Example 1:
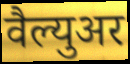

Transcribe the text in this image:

वैल्युअर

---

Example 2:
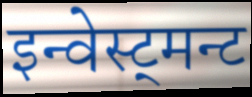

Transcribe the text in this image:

इन्वेस्ट्मन्ट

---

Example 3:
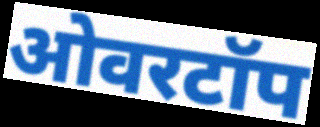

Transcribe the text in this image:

ओवरटॉप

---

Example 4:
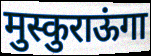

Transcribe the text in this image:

मुस्कुराऊंगा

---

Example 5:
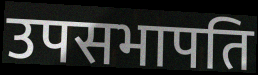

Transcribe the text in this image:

उपसभापति